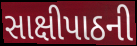
સાક્ષીપાઠની